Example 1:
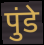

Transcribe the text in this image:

पुंडे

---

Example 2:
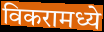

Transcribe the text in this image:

विकरामध्ये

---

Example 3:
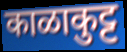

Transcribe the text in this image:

काळाकुट्ट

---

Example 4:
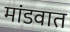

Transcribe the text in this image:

मांडवात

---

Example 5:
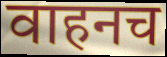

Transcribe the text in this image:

वाहनच